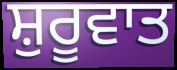
ਸ਼ੁਰੂਵਾਤ